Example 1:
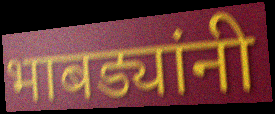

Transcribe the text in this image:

भाबड्यांनी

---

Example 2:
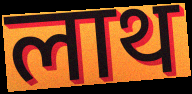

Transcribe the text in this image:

लाथ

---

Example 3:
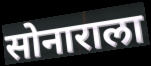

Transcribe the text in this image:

सोनाराला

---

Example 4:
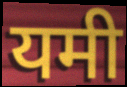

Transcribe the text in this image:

यमी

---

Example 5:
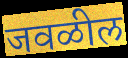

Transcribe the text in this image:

जवळील